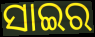
ସାଇର